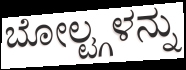
ಬೋಲ್ಟ್ಗಳನ್ನು